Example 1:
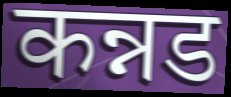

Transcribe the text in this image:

कन्नड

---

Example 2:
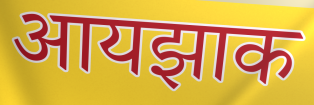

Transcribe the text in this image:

आयझाक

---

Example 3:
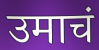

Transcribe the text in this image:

उमाचं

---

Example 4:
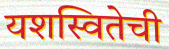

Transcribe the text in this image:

यशस्वितेची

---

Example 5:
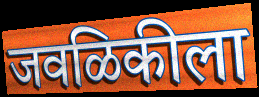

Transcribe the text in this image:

जवळिकीला